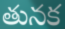
తునక